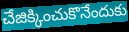
చేజిక్కించుకొనేందుకు